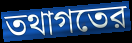
তথাগতের